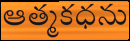
ఆత్మకధను